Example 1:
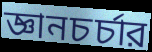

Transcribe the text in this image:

জ্ঞানচর্চার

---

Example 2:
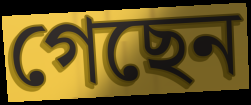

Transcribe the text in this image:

গেছেন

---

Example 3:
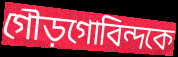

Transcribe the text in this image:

গৌড়গোবিন্দকে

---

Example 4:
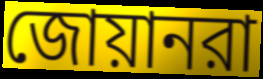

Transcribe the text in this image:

জোয়ানরা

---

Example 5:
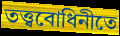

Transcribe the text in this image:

তত্ত্ববোধিনীতে